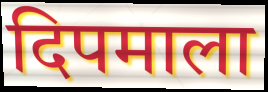
दिपमाला